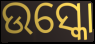
ଉସ୍କୋ